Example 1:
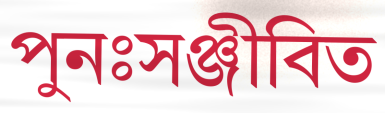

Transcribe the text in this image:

পুনঃসঞ্জীবিত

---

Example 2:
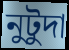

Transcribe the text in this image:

নুটুদা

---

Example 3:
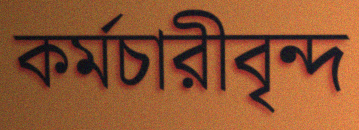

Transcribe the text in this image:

কর্মচারীবৃন্দ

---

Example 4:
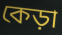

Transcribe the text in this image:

কেড়া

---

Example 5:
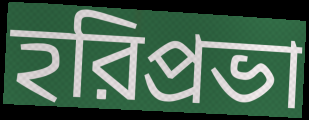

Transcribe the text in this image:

হরিপ্রভা